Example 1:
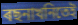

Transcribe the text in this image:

ৰছনাখনিতেই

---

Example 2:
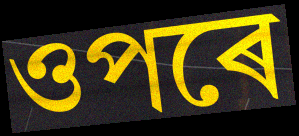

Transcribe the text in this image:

ওপৰে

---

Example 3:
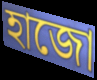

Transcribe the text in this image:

হাজো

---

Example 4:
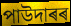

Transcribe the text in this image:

পাউদাৰৰ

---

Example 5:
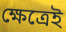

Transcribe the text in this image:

ক্ষেত্ৰেই